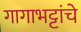
गागाभट्टांचे